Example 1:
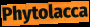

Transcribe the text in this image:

Phytolacca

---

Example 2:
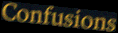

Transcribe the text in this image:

Confusions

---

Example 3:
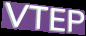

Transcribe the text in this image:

VTEP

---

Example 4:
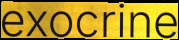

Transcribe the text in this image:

exocrine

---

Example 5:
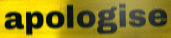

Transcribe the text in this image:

apologise